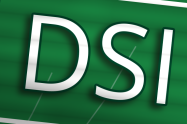
DSI